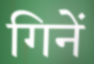
गिनें